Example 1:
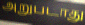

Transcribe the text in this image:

அறுபடாது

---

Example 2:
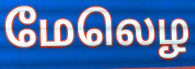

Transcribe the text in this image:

மேலெழ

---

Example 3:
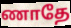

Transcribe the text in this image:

ணாதே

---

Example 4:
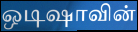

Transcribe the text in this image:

ஒடிஷாவின்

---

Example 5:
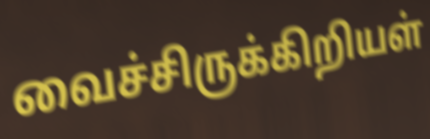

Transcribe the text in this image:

வைச்சிருக்கிறியள்